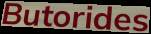
Butorides